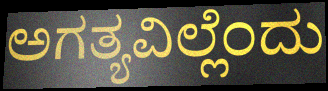
ಅಗತ್ಯವಿಲ್ಲೆಂದು